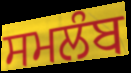
ਸਮਲੰਬ